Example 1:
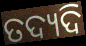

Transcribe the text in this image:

ତଦ୍ୟଦି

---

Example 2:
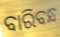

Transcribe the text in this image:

ବାରିବନ୍ଧ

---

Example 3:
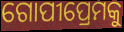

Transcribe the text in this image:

ଗୋପୀପ୍ରେମକୁ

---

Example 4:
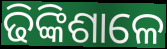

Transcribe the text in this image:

ଢିଙ୍କିଶାଳେ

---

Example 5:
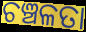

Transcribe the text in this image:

ଚଞ୍ଚଳତା